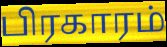
பிரகாரம்